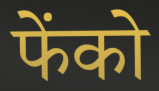
फेंको